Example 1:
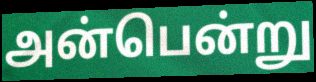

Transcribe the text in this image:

அன்பென்று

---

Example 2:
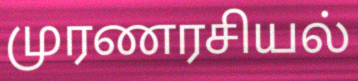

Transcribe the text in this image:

முரணரசியல்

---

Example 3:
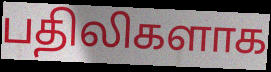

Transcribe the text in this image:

பதிலிகளாக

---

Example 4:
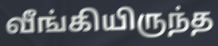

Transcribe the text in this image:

வீங்கியிருந்த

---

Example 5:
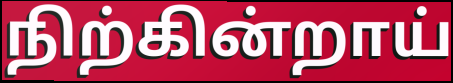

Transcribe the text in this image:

நிற்கின்றாய்